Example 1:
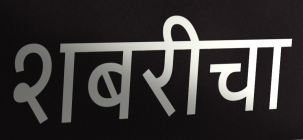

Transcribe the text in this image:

शबरीचा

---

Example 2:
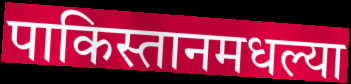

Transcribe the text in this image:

पाकिस्तानमधल्या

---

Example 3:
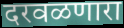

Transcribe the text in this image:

दरवळणारा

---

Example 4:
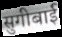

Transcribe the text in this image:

सुगीबाई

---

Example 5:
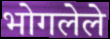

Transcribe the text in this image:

भोगलेले